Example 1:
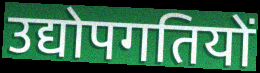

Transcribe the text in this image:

उद्योपगतियों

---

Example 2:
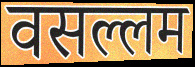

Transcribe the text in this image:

वसल्लम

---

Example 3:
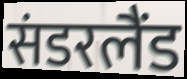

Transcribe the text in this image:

संडरलैंड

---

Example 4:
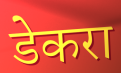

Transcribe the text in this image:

डेकरा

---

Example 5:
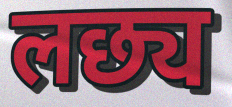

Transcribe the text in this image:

लछ्य